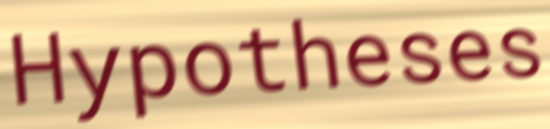
Hypotheses